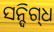
ସନ୍ଦିଗ୍‌ଧ